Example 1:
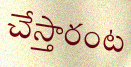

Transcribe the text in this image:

చేస్తారంట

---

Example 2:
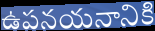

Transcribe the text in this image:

ఉపనయనానికి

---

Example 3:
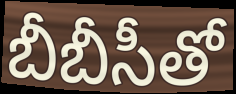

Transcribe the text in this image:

బీబీసీతో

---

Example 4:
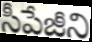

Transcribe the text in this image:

సీపేజీని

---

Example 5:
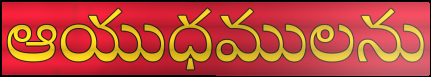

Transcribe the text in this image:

ఆయుధములను